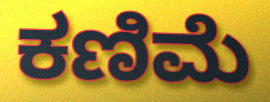
ಕಣಿಮೆ